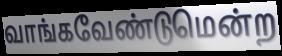
வாங்கவேண்டுமென்ற